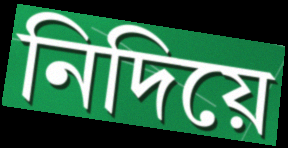
নিদিয়ে